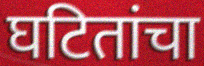
घटितांचा